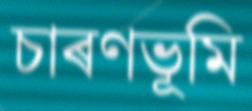
চাৰণভূমি